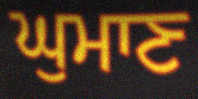
ਘੁਮਾਣ